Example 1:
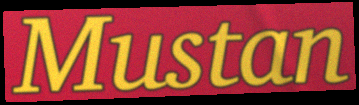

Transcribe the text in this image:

Mustan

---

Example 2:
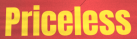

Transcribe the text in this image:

Priceless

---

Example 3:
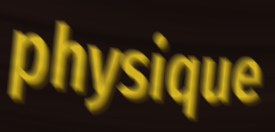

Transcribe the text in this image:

physique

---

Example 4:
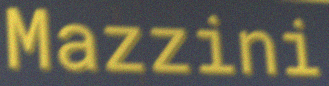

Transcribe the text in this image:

Mazzini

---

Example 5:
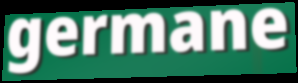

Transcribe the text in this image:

germane